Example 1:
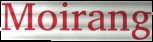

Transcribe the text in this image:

Moirang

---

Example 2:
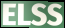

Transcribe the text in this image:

ELSS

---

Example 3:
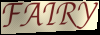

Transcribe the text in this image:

FAIRY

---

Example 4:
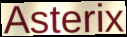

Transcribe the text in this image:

Asterix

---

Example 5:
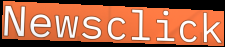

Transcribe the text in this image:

Newsclick